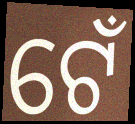
ଟେଁ